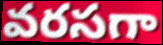
వరసగా